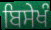
ਬਿਸੇਖੰ